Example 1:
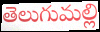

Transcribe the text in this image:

తెలుగుమల్లి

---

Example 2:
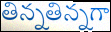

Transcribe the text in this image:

తిన్నతిన్నగా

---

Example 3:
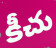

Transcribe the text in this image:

కీచు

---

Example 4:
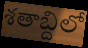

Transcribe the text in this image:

శతాబ్దిలో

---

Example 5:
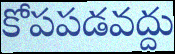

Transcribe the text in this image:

కోపపడవద్దు